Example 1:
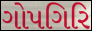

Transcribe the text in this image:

ગોપગિરિ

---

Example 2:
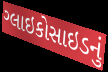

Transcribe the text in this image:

ગ્લાઇકોસાઇડનું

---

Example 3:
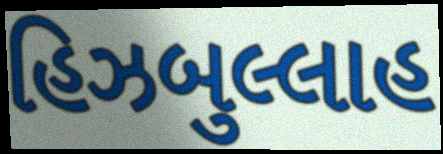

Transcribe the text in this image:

હિઝબુલ્લાહ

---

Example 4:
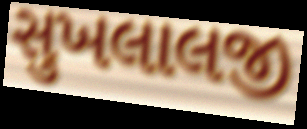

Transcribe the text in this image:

સુખલાલજી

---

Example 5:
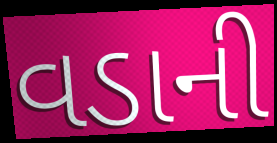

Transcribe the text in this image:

વડાની